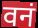
वनं